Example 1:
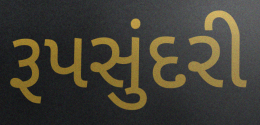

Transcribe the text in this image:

રૂપસુંદરી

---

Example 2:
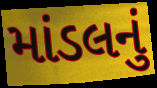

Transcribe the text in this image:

માંડલનું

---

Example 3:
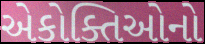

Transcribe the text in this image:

એકોક્તિઓનો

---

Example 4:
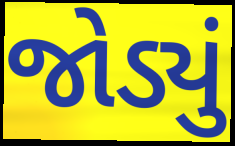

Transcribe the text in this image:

જોડ્યું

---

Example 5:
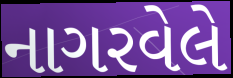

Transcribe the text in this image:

નાગરવેલે